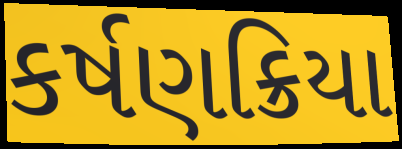
કર્ષણક્રિયા